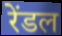
रेंडल